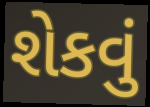
શેકવું